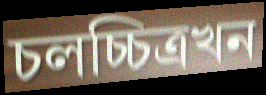
চলচ্চিত্ৰখন